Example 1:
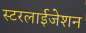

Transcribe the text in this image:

स्टरलाईजेशन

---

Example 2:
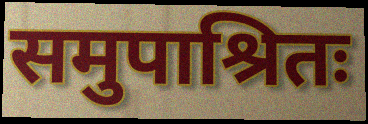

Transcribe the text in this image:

समुपाश्रितः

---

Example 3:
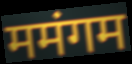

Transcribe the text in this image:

ममंगम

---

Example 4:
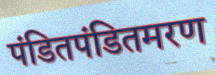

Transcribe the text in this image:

पंडितपंडितमरण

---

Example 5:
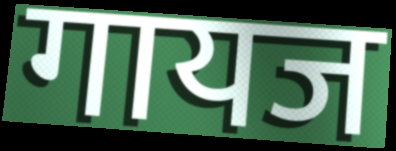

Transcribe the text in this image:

गायज